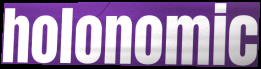
holonomic